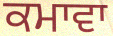
ਕਮਾਵਾ